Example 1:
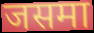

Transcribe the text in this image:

जसमा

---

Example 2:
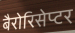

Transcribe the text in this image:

बैरोरिसेप्टर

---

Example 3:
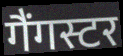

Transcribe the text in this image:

गैंगस्टर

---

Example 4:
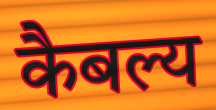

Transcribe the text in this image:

कैबल्य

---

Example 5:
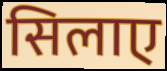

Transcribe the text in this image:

सिलाए